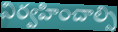
నిర్వహించాల్సి